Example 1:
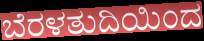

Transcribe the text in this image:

ಬೆರಳತುದಿಯಿಂದ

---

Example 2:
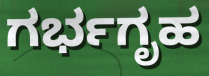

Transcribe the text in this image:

ಗರ್ಭಗೃಹ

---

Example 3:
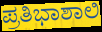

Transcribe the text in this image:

ಪ್ರತಿಭಾಶಾಲಿ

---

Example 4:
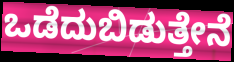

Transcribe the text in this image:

ಒಡೆದುಬಿಡುತ್ತೇನೆ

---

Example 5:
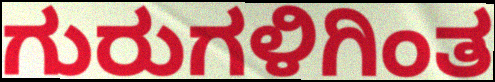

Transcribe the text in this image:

ಗುರುಗಳಿಗಿಂತ